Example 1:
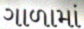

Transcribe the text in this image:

ગાળામાં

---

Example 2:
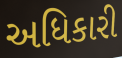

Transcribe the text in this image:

અધિકારી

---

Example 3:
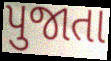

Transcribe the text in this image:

પુજાતા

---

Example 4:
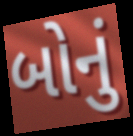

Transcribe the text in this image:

બોનું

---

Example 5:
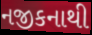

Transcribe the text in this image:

નજીકનાથી